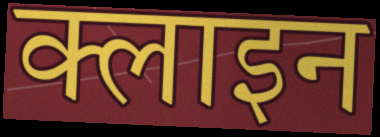
क्लाइन